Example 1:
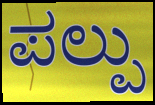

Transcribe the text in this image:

ಪಲ್ಪು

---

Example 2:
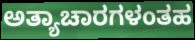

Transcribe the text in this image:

ಅತ್ಯಾಚಾರಗಳಂತಹ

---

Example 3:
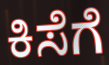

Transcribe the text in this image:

ಕಿಸೆಗೆ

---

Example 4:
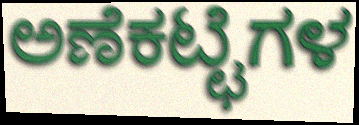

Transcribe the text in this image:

ಅಣೆಕಟ್ಟೆಗಳ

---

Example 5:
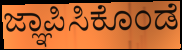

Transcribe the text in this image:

ಜ್ಞಾಪಿಸಿಕೊಂಡೆ